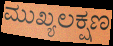
ಮುಖ್ಯಲಕ್ಷಣ